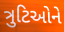
ત્રુટિઓને